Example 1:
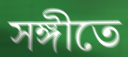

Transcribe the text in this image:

সঙ্গীতে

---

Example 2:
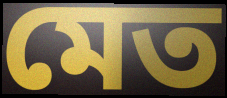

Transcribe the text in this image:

মেত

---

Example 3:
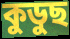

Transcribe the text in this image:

কুডুছ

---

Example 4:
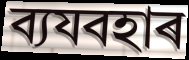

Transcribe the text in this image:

ব্যযবহাৰ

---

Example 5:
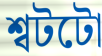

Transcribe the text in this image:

শ্বটটো